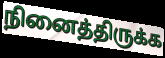
நினைத்திருக்க